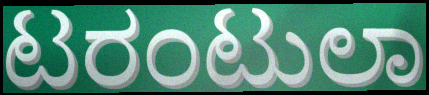
ಟರಂಟುಲಾ